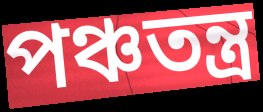
পঞ্চতন্ত্ৰ